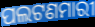
ପଲଟଣମାରୀ